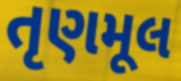
તૃણમૂલ